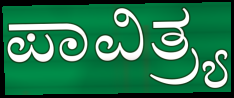
ಪಾವಿತ್ರ್ಯ